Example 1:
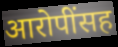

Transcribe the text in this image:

आरोपींसह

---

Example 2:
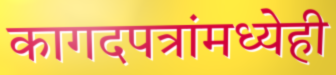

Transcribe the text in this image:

कागदपत्रांमध्येही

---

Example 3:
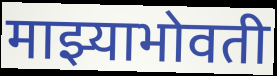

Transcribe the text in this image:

माझ्याभोवती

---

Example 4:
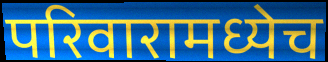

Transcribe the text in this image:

परिवारामध्येच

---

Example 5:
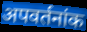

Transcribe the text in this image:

अपवर्तनांक